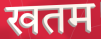
खतम